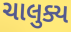
ચાલુક્ય